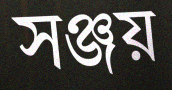
সঞ্জয়